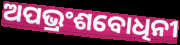
ଅପଭ୍ରଂଶବୋଧିନୀ